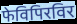
फेविपिरविर